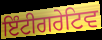
ਇੰਟੀਗਰੇਟਿਵ